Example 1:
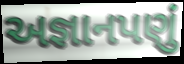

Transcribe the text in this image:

અજ્ઞાનપણું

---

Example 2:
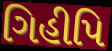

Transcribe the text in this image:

ગિહીપિ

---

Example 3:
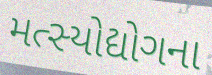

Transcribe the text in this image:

મત્સ્યોદ્યોગના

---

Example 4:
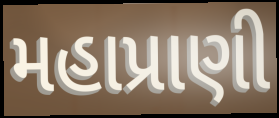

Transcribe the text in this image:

મહાપ્રાણી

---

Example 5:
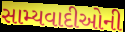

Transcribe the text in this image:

સામ્યવાદીઓની